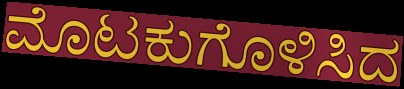
ಮೊಟಕುಗೊಳಿಸಿದ